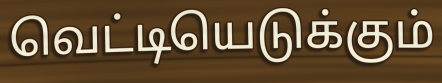
வெட்டியெடுக்கும்